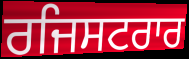
ਰਜਿਸਟਰਾਰ